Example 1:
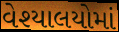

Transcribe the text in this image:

વેશ્યાલયોમાં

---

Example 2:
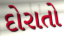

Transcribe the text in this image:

દોરાતો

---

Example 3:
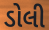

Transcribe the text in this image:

ડોલી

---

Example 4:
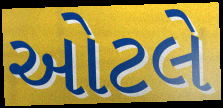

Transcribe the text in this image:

ઓટલે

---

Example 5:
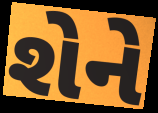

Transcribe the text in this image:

શેને